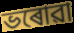
ভৰোৱা